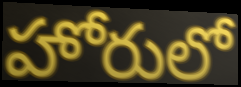
హోరులో